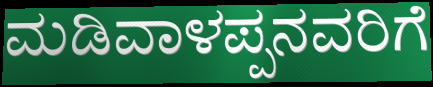
ಮಡಿವಾಳಪ್ಪನವರಿಗೆ